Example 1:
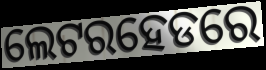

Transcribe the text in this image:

ଲେଟରହେଡରେ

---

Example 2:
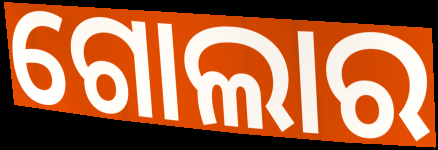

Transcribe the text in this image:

ଗୋଲାର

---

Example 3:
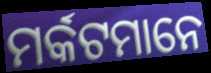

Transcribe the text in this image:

ମର୍କଟମାନେ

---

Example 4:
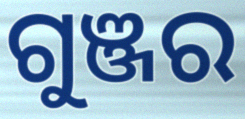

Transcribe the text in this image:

ଗୁଞ୍ଜର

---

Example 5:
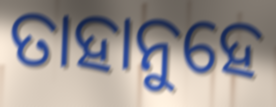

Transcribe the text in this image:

ତାହାନୁହେ